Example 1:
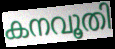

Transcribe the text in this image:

കനവൂതി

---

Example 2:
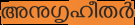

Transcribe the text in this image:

അനുഗൃഹീതർ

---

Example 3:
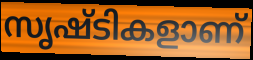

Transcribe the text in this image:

സൃഷ്ടികളാണ്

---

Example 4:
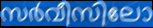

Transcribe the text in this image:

സർവീസിലോ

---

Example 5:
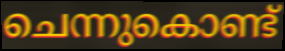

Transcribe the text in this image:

ചെന്നുകൊണ്ട്